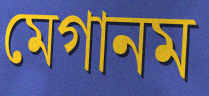
মেগানম